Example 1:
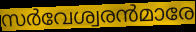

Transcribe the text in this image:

സർവേശ്വരൻമാരേ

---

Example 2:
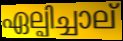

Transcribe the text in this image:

ഏല്പിച്ചാല്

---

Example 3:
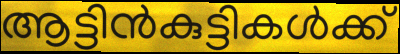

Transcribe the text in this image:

ആട്ടിൻകുട്ടികൾക്ക്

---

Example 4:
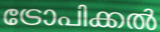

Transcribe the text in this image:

ട്രോപിക്കൽ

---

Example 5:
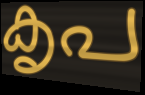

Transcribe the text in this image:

കൃപ